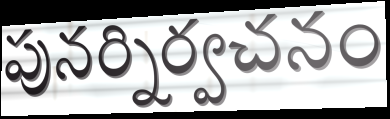
పునర్నిర్వచనం